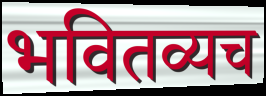
भवितव्यच